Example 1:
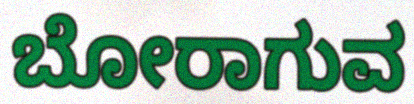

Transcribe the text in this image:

ಬೋರಾಗುವ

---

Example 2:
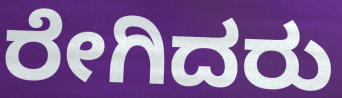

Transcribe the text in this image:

ರೇಗಿದರು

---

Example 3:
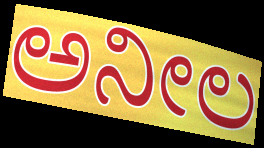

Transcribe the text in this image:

ಅನೀಲ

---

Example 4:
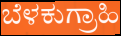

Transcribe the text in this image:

ಬೆಳಕುಗ್ರಾಹಿ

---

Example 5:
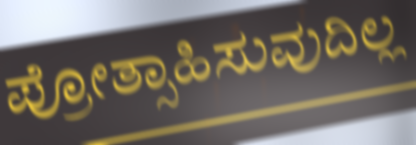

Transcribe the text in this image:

ಪ್ರೋತ್ಸಾಹಿಸುವುದಿಲ್ಲ